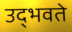
उद्भवते